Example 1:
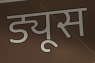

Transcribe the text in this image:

ड्यूस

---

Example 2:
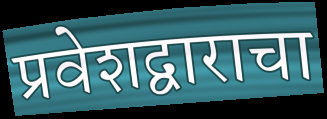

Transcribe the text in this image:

प्रवेशद्वाराचा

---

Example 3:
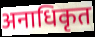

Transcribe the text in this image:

अनाधिकृत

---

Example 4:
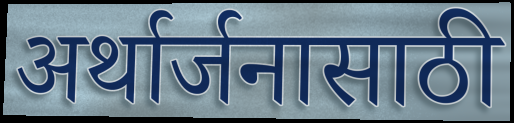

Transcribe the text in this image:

अर्थार्जनासाठी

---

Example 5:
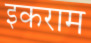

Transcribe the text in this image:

इकराम